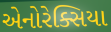
એનોરેક્સિયા